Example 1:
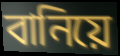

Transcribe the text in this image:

বানিয়ে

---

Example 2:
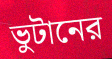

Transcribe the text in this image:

ভুটানের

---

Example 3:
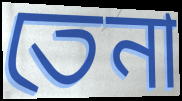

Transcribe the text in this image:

তেনা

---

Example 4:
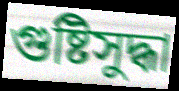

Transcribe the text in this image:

গুষ্টিসুদ্ধা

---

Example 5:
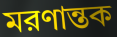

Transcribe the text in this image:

মরণান্তক